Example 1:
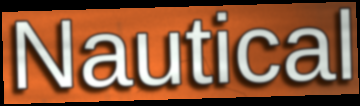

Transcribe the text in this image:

Nautical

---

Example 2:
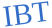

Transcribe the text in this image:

IBT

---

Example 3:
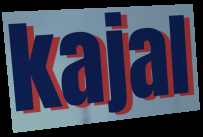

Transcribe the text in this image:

kajal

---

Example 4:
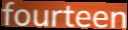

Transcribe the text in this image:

fourteen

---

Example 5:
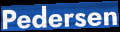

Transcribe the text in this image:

Pedersen